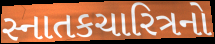
સ્નાતકચારિત્રનો